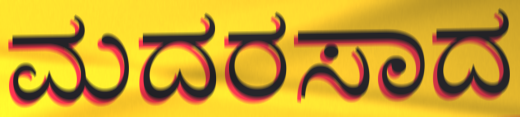
ಮದರಸಾದ